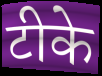
टीके